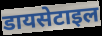
डायसेटाइल